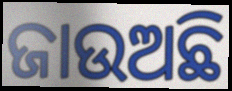
ଜାଉଅଛି